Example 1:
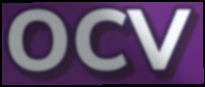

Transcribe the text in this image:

OCV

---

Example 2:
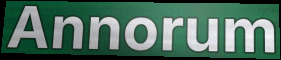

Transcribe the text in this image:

Annorum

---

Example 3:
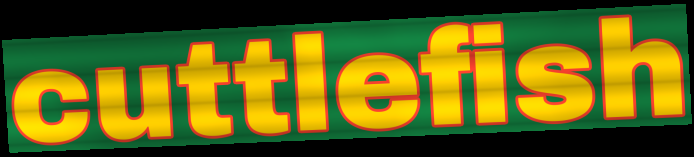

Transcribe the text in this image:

cuttlefish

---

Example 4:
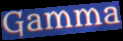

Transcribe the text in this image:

Gamma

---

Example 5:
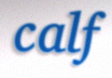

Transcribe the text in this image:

calf